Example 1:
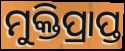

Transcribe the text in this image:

ମୁକ୍ତିପ୍ରାପ୍ତ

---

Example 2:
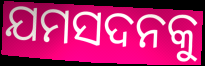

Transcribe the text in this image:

ଯମସଦନକୁ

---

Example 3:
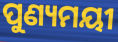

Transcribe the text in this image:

ପୁଣ୍ୟମୟୀ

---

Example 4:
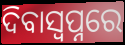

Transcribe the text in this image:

ଦିବାସ୍ବପ୍ନରେ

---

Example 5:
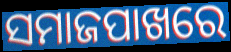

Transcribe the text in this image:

ସମାଜପାଖରେ